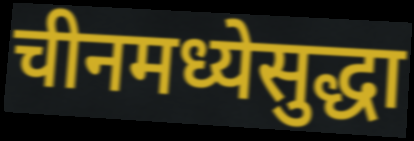
चीनमध्येसुद्धा